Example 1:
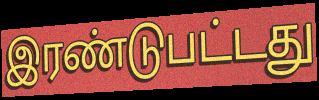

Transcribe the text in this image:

இரண்டுபட்டது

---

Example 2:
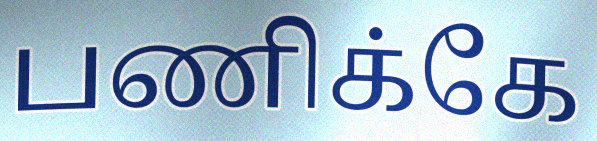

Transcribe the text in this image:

பணிக்கே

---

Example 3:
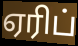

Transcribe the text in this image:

ஏரிப்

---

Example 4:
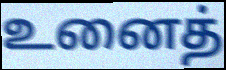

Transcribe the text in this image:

உனைத்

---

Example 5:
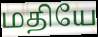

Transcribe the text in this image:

மதியே